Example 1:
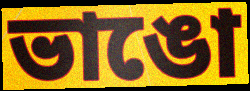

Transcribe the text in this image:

ভাঙো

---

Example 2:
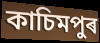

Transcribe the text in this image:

কাচিমপুৰ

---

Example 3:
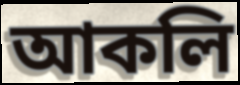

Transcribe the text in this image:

আকলি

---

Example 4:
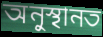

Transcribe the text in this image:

অনুস্থানত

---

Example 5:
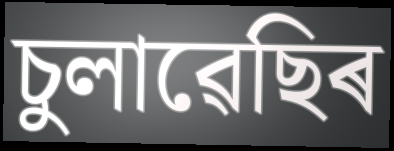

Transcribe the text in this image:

চুলাৱেছিৰ